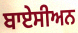
ਬਾਏਸੀਅਨ